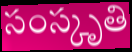
సంస్కృతి